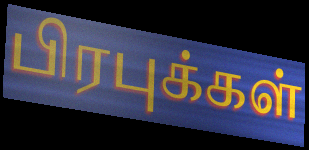
பிரபுக்கள்